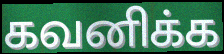
கவனிக்க